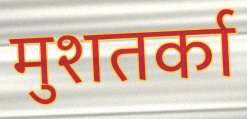
मुशतर्का